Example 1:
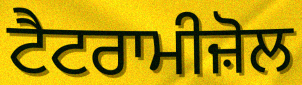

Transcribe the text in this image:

ਟੈਟਰਾਮੀਜ਼ੋਲ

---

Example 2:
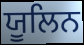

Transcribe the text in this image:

ਯੂਲਿਨ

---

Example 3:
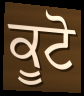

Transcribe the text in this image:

ਕੂਟੋ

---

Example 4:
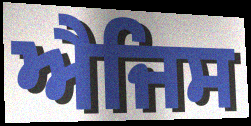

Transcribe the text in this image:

ਐਜਿਸ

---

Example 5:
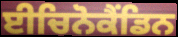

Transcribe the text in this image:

ਈਚਿਨੋਕੈਂਡਿਨ